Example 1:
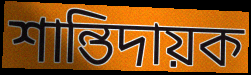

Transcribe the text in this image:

শান্তিদায়ক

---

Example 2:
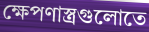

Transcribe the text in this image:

ক্ষেপণাস্ত্রগুলোতে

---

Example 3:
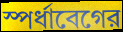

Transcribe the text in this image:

স্পর্ধাবেগের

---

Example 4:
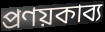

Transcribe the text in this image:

প্রণয়কাব্য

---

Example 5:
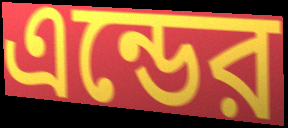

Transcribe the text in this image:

এন্ডের